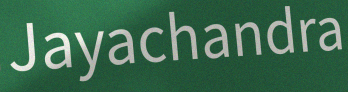
Jayachandra